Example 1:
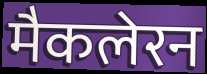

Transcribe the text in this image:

मैकलेरन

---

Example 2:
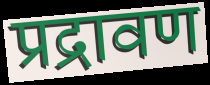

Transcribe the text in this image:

प्रद्रावण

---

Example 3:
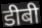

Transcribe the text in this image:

डीबी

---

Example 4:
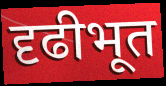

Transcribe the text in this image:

दृढीभूत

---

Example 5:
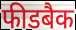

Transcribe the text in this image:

फीडबैक